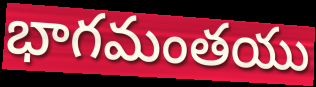
భాగమంతయు